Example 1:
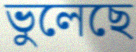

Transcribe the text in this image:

ভুলেছে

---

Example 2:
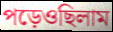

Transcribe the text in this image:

পড়েওছিলাম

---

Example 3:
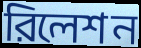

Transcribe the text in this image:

রিলেশন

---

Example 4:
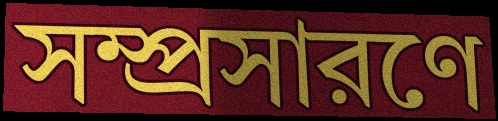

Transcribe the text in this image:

সম্প্রসারণে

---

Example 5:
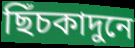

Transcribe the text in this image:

ছিঁচকাদুনে